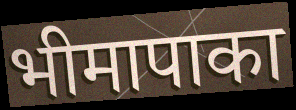
भीमापाका